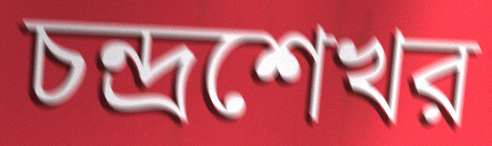
চন্দ্রশেখর